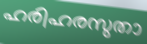
ഹരിഹരസുതാ